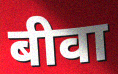
बीवा